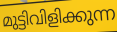
മുട്ടിവിളിക്കുന്ന